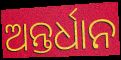
ଅନ୍ତର୍ଧାନ